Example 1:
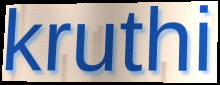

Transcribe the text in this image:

kruthi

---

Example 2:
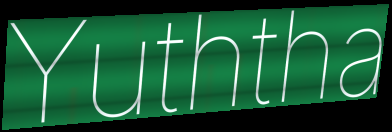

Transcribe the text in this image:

Yuththa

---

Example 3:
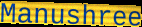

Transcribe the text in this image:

Manushree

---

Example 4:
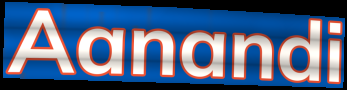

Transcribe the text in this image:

Aanandi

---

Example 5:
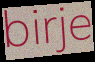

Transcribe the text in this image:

birje